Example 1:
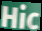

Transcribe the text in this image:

Hic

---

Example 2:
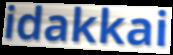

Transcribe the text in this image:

idakkai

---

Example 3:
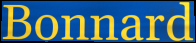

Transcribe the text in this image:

Bonnard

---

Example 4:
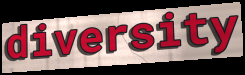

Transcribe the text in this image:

diversity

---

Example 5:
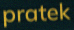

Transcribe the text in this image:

pratek